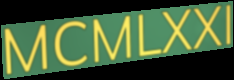
MCMLXXI